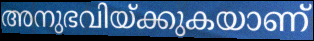
അനുഭവിയ്ക്കുകയാണ്